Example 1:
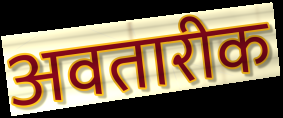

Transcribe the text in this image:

अवतारीक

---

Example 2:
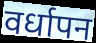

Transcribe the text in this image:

वर्धापन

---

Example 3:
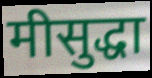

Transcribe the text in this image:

मीसुद्धा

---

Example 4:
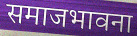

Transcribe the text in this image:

समाजभावना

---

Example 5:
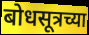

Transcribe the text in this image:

बोधसूत्रच्या